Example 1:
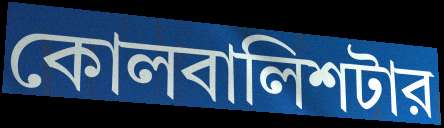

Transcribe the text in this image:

কোলবালিশটার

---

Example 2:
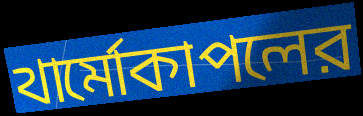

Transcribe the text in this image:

থার্মোকাপলের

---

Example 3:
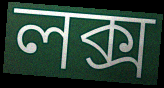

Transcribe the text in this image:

লক্স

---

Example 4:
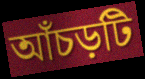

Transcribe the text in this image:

আঁচড়টি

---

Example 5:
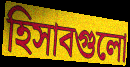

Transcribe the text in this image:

হিসাবগুলো